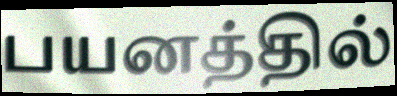
பயனத்தில்